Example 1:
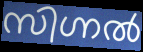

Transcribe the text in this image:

സിഗ്നൽ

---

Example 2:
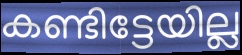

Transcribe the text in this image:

കണ്ടിട്ടേയില്ല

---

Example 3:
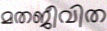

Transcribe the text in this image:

മതജീവിത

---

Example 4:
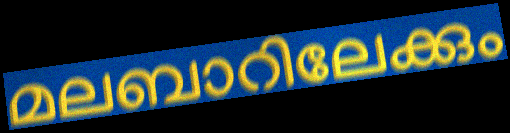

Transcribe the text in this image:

മലബാറിലേക്കും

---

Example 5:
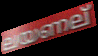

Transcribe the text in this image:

ലയണല്